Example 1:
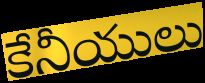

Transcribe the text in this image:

కేనీయులు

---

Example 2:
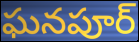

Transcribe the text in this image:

ఘనపూర్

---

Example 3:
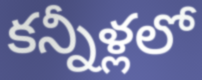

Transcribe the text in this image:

కన్నీళ్లలో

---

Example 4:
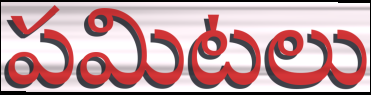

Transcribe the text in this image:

పమిటలు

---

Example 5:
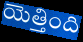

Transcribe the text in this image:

యెత్తింది